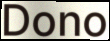
Dono